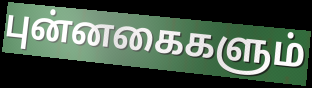
புன்னகைகளும்